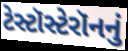
ટેસ્ટૉસ્ટેરૉનનું